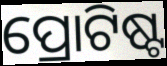
ପ୍ରୋଟିଷ୍ଟ